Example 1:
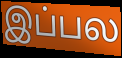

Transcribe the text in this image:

இப்பல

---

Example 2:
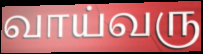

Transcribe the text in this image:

வாய்வரு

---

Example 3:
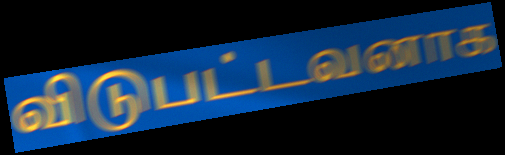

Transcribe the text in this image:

விடுபட்டவனாக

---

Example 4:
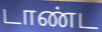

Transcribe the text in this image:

டாண்ட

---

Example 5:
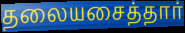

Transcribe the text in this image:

தலையசைத்தார்